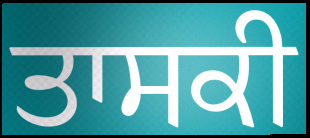
ਤਾਸਕੀ